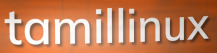
tamillinux